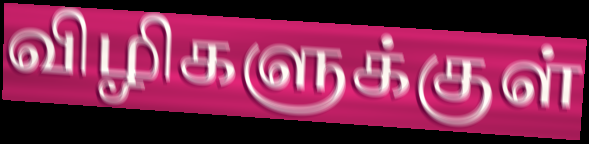
விழிகளுக்குள்